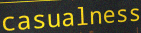
casualness